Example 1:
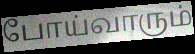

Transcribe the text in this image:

போய்வாரும்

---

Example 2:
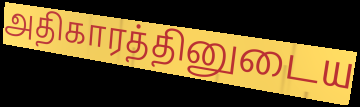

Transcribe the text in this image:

அதிகாரத்தினுடைய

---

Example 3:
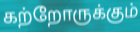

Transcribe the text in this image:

கற்றோருக்கும்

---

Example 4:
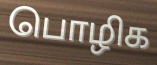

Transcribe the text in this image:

பொழிக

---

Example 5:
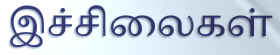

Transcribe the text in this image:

இச்சிலைகள்